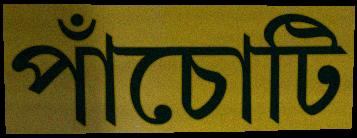
পাঁচোটি